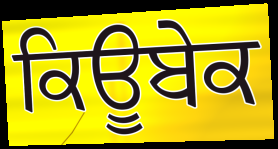
ਕਿਊਬੇਕ